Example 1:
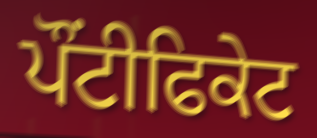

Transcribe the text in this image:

ਪੌਂਟੀਫਿਕੇਟ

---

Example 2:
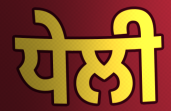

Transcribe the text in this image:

ਧੇਲੀ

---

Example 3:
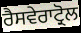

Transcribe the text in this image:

ਰੈਸਵੇਰਾਟ੍ਰੋਲ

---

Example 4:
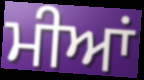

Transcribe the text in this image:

ਮੀਆਂ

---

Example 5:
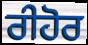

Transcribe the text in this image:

ਰੀਹੋਰ